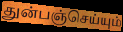
துன்பஞ்செய்யும்